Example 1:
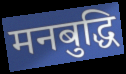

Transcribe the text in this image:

मनबुद्धि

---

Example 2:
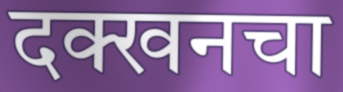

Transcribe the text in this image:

दक्खनचा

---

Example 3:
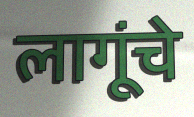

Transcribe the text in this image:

लागूंचे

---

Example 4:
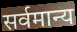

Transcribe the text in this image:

सर्वमान्य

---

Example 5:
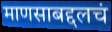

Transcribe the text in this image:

माणसाबद्दलचं